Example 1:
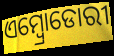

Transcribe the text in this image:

ଏମ୍ବ୍ରୋଡୋରୀ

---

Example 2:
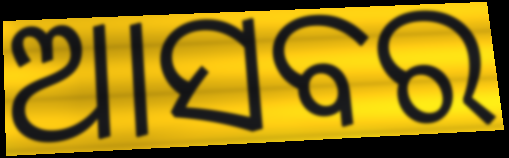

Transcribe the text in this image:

ଆସବର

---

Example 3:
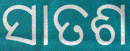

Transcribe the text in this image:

ସାତଶ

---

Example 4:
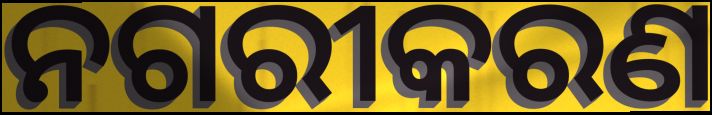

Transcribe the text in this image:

ନଗରୀକରଣ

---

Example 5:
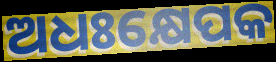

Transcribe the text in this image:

ଅଧଃକ୍ଷେପକ